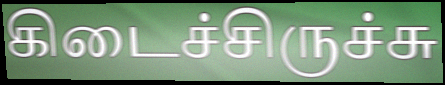
கிடைச்சிருச்சு